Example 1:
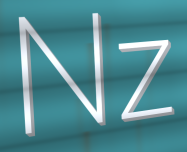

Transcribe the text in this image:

Nz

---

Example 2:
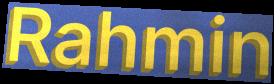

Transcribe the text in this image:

Rahmin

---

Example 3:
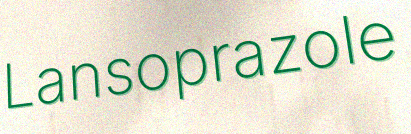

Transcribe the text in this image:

Lansoprazole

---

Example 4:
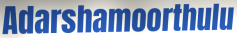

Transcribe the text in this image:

Adarshamoorthulu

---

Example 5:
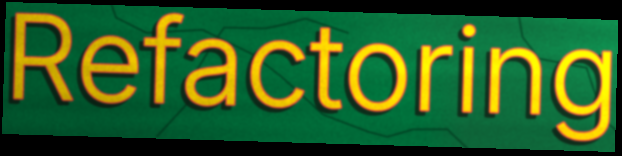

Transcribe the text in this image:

Refactoring